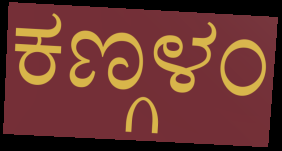
ಕಣ್ಗಳಂ